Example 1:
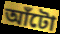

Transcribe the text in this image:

আঁটো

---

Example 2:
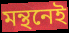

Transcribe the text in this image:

মন্থনেই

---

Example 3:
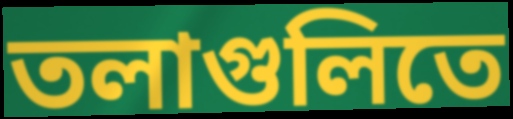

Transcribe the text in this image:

তলাগুলিতে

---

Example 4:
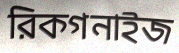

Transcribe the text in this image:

রিকগনাইজ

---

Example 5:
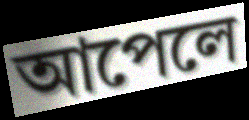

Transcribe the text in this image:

আপেলে